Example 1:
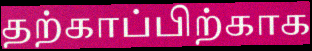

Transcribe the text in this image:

தற்காப்பிற்காக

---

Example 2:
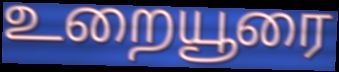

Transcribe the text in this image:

உறையூரை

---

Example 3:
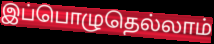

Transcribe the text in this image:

இப்பொழுதெல்லாம்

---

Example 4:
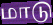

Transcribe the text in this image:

மாடு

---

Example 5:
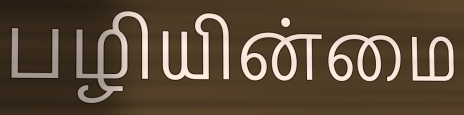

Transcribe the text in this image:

பழியின்மை